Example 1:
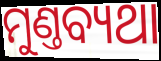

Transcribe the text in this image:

ମୁଣ୍ତବ୍ୟଥା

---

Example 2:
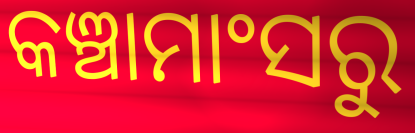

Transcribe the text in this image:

କଞ୍ଚାମାଂସରୁ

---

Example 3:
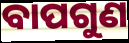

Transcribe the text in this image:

ବାପଗୁଣ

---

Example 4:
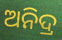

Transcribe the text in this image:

ଅନିଦ୍ର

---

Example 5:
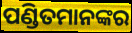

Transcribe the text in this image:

ପଣ୍ଡିତମାନଙ୍କର